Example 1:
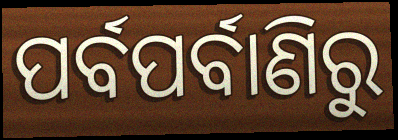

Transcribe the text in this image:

ପର୍ବପର୍ବାଣିରୁ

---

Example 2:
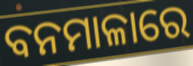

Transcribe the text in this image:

ବନମାଳାରେ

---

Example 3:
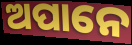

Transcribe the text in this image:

ଅପାନେ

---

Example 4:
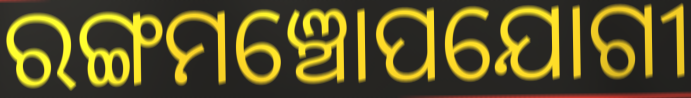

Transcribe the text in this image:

ରଙ୍ଗମଞ୍ଚୋପଯୋଗୀ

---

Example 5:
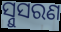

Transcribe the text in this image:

ସ୍ନୁସରଣ